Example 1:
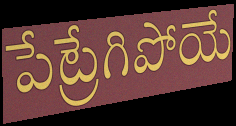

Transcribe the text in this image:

పేట్రేగిపోయే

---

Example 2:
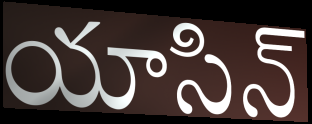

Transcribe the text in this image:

యాసిన్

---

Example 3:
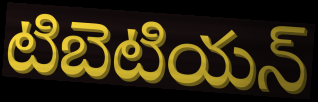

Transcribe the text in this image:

టిబెటియన్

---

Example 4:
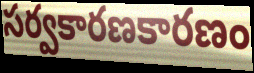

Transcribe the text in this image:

సర్వకారణకారణం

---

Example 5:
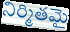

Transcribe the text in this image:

నిర్మితమై